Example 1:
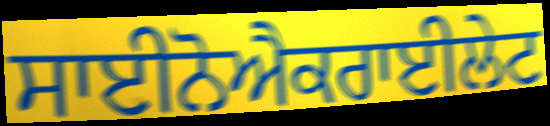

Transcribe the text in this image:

ਸਾਈਨੋਐਕਰਾਈਲੇਟ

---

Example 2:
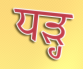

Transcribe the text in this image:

ਧੜ੍ਹ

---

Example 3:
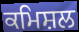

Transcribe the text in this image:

ਕਮਿਸ਼ਲ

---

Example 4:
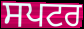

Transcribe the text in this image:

ਸਪਟਰ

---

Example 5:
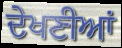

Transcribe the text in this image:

ਦੇਖਣੀਆਂ